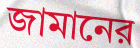
জামানের